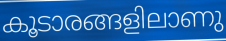
കൂടാരങ്ങളിലാണു